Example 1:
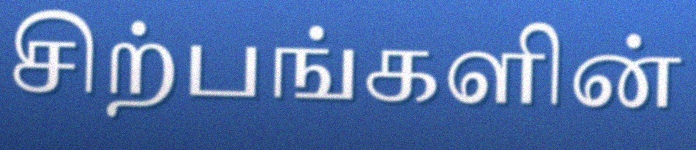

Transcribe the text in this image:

சிற்பங்களின்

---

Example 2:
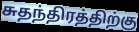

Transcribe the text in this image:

சுதந்திரத்திற்கு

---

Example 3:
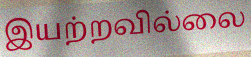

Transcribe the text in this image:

இயற்றவில்லை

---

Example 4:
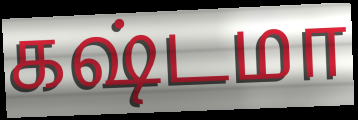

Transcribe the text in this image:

கஷ்டமா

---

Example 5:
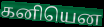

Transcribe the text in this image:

கனியென